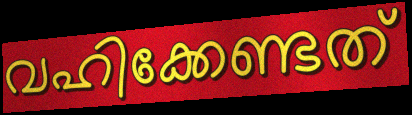
വഹിക്കേണ്ടത്